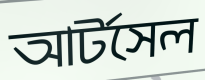
আর্টসেল